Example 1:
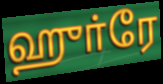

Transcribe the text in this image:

ஹுர்ரே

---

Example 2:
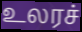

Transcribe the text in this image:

உலரச்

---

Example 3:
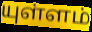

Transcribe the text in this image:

யுள்ளம்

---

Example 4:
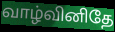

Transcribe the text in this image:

வாழ்வினிதே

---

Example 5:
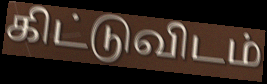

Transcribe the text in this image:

கிட்டுவிடம்